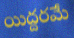
యిద్దరమే